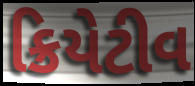
ક્રિયેટીવ